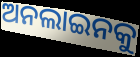
ଅନଲାଇନକୁ